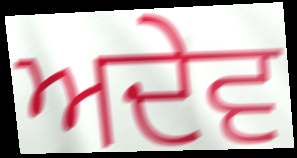
ਅਦੇਵ